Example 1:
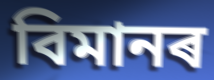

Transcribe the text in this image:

বিমানৰ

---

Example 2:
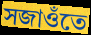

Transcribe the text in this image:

সজাওঁতে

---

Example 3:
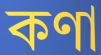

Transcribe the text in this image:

কণা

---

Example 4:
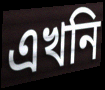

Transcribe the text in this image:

এখনি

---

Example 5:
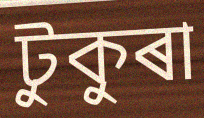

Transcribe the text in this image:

টুকুৰা